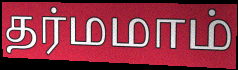
தர்மமாம்